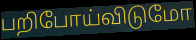
பறிபோய்விடுமோ